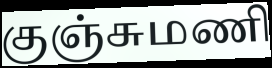
குஞ்சுமணி